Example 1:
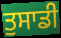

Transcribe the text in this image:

ਤੁਸਾਡੀ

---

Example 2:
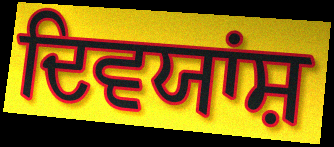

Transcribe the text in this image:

ਦਿਵਯਾਂਸ਼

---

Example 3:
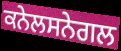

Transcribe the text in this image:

ਕਨੇਲਸਨੇਗਲ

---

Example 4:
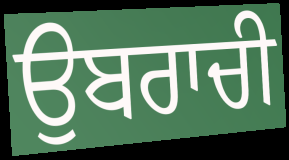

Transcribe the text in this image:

ਉਬਰਾਚੀ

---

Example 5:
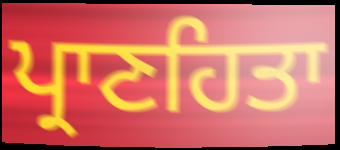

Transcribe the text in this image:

ਪ੍ਰਾਣਹਿਤਾ